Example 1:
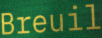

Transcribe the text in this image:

Breuil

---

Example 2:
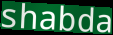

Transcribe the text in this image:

shabda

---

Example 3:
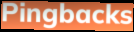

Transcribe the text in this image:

Pingbacks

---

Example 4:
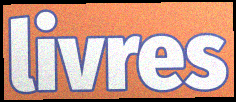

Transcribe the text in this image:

livres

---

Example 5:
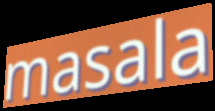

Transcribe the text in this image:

masala